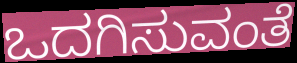
ಒದಗಿಸುವಂತೆ